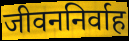
जीवननिर्वाह